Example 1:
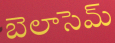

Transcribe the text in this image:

బెలాసెమ్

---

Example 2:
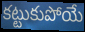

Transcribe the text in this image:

కట్టుకుపోయే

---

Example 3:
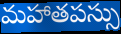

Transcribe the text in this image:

మహాతపస్సు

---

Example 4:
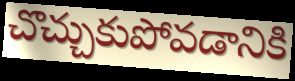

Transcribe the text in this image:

చొచ్చుకుపోవడానికి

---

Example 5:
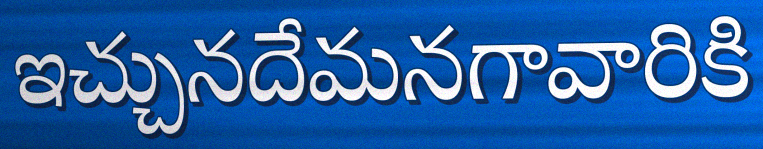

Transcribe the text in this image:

ఇచ్చునదేమనగావారికి